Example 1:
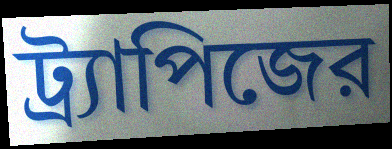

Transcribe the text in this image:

ট্র্যাপিজের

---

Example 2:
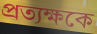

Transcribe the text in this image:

প্রত্যক্ষকে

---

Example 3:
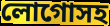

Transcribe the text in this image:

লোগোসহ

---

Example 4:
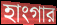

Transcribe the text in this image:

হাংগার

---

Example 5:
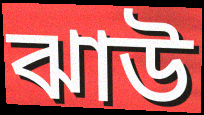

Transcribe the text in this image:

ঝাউ